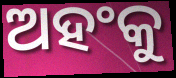
ଅହଂକୁ